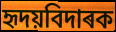
হৃদয়বিদাৰক